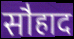
सौहाद